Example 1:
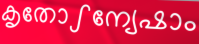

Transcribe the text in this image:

കൃതോഽന്യേഷാം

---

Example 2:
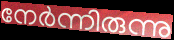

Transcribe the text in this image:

നേർന്നിരുന്നു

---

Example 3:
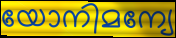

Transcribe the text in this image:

യോനിമന്യേ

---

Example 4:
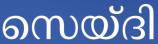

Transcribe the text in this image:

സെയ്ദി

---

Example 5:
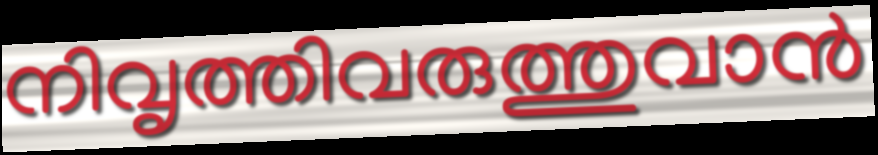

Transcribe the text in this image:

നിവൃത്തിവരുത്തുവാൻ